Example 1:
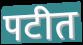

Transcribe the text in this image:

पटीत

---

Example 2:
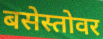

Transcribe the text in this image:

बसेस्तोवर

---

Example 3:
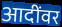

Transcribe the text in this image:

आदींवर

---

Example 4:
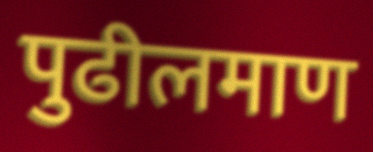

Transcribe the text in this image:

पुढीलमाण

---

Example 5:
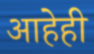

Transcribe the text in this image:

आहेही